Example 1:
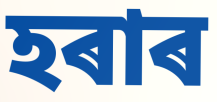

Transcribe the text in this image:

হৰাৰ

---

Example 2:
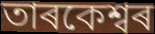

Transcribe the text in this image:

তাৰকেশ্বৰ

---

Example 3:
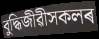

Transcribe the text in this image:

বুদ্ধিজীৱীসকলৰ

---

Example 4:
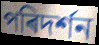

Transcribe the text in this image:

পৰিদৰ্শন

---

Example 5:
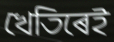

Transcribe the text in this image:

খেতিৰেই